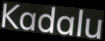
Kadalu